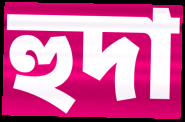
হুদা